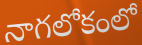
నాగలోకంలో